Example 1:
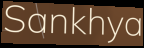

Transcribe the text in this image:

Sankhya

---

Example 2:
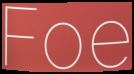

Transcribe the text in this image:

Foe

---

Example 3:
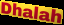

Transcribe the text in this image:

Dhalah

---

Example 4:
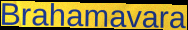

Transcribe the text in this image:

Brahamavara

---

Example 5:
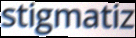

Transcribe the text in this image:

stigmatiz